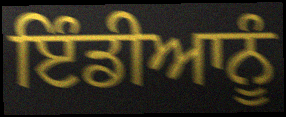
ਇੰਡੀਆਨੂੰ